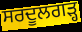
ਸਰਦੂਲਗੜ੍ਹ